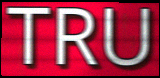
TRU